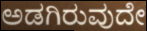
ಅಡಗಿರುವುದೇ